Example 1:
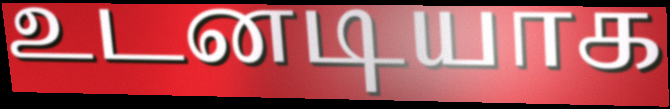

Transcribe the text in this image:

உடனடியாக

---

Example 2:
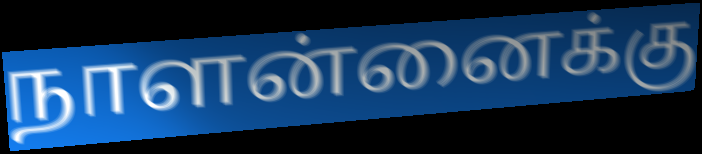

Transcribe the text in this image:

நாளன்னைக்கு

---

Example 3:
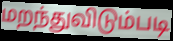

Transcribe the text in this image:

மறந்துவிடும்படி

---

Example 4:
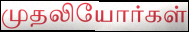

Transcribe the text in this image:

முதலியோர்கள்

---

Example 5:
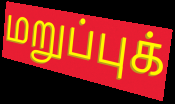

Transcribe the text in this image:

மறுப்புக்